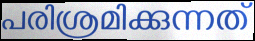
പരിശ്രമിക്കുന്നത്